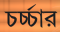
চর্চ্চার